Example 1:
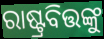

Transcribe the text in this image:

ରାଷ୍ଟ୍ରବିତ୍ତଙ୍କୁ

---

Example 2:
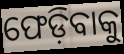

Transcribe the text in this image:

ଫେଡ଼ିବାକୁ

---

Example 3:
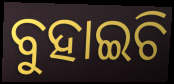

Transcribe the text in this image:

ବୁହାଇଚି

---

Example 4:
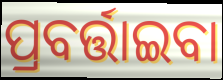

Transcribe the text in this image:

ପ୍ରବର୍ତ୍ତାଇବା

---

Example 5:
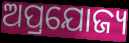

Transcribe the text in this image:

ଅପ୍ରଯୋଜ୍ୟ